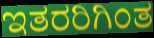
ಇತರರಿಗಿಂತ